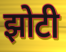
झोटी